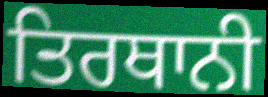
ਤਿਰਥਾਨੀ